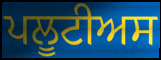
ਪਲੂਟੀਅਸ